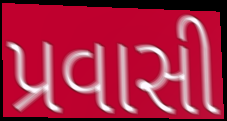
પ્રવાસી